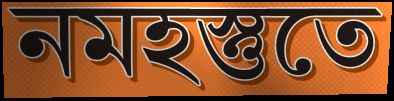
নমহস্তুতে